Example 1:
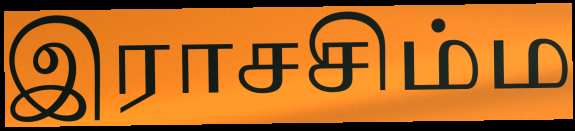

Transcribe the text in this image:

இராசசிம்ம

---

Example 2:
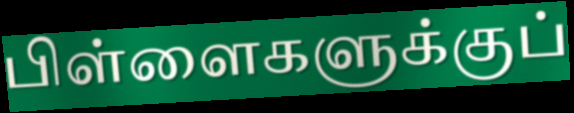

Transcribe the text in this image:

பிள்ளைகளுக்குப்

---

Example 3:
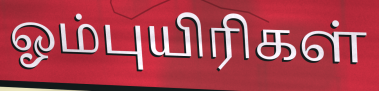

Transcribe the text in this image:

ஓம்புயிரிகள்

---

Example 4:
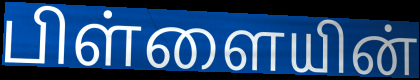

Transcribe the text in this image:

பிள்ளையின்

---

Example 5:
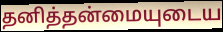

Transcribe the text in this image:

தனித்தன்மையுடைய